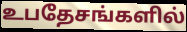
உபதேசங்களில்